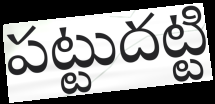
పట్టుదట్టి